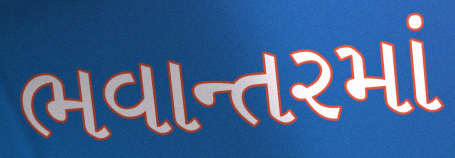
ભવાન્તરમાં